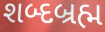
શબ્દબ્રહ્મ